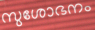
സുശോഭനം